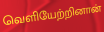
வெளியேற்றினான்